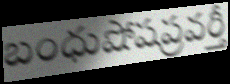
బంధుషోషప్రవర్తీ